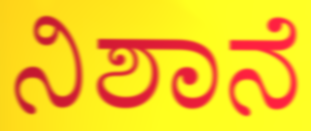
ನಿಶಾನೆ